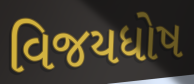
વિજયધોષ